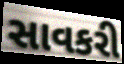
સાવકરી